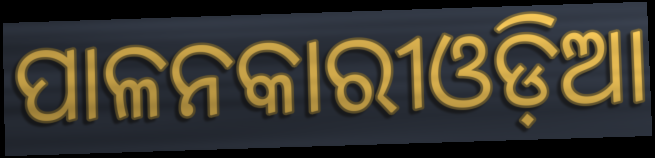
ପାଳନକାରୀଓଡ଼ିଆ